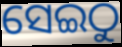
ସେଇଠୁ